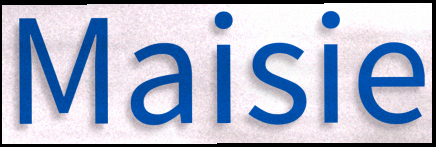
Maisie